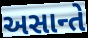
અસાન્તે